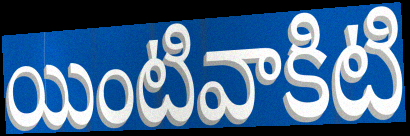
యింటివాకిటి